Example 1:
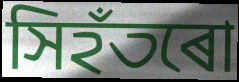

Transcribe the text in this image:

সিহঁতৰো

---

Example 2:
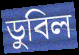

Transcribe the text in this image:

ডুবিল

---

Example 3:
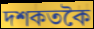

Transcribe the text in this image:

দশকতকৈ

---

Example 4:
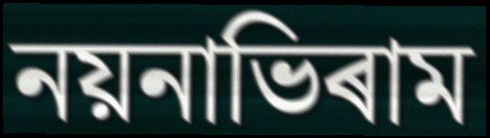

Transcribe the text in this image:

নয়নাভিৰাম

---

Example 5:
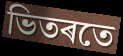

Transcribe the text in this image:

ভিতৰতে